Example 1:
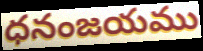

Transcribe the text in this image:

ధనంజయము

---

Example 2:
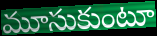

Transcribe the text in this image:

మూసుకుంటూ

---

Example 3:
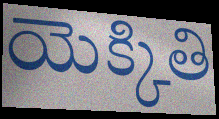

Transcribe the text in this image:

యెక్కితి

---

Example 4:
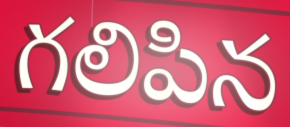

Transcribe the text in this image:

గలిపిన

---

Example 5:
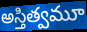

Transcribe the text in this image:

అస్తిత్వమూ